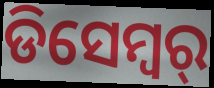
ଡିସେମ୍ବର୍